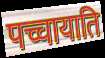
पच्चायाति